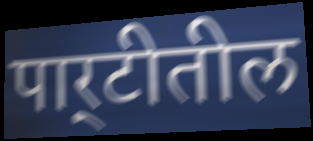
पार्टीतील